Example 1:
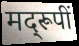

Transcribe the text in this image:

मद्‌रूपीं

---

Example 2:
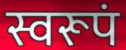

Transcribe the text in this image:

स्वरूपं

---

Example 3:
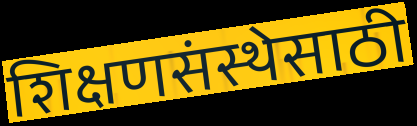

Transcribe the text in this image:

शिक्षणसंस्थेसाठी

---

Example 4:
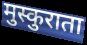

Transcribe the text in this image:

मुस्कुराता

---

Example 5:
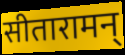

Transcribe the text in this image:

सीतारामन्